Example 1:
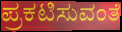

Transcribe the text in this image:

ಪ್ರಕಟಿಸುವಂತೆ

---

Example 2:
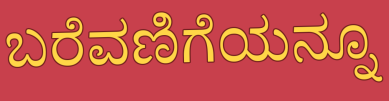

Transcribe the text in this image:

ಬರೆವಣಿಗೆಯನ್ನೂ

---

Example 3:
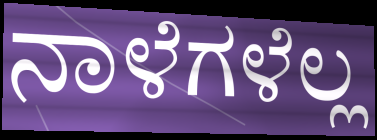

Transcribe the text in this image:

ನಾಳೆಗಳೆಲ್ಲ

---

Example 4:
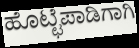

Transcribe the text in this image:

ಹೊಟ್ಟೆಪಾಡಿಗಾಗಿ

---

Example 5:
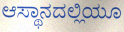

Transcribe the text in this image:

ಆಸ್ಥಾನದಲ್ಲಿಯೂ